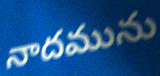
నాదమును